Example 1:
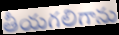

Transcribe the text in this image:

తీయగలిగాను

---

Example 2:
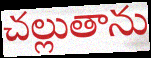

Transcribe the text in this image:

చల్లుతాను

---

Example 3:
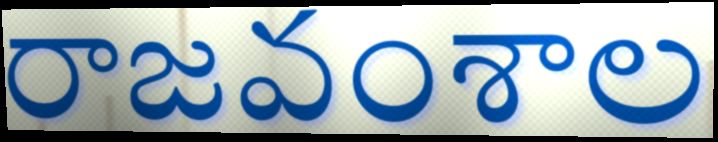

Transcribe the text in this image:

రాజవంశాల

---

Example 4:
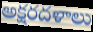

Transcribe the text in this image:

అక్షరదళాలు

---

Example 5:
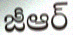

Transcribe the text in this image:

జీఆర్